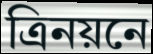
ত্রিনয়নে